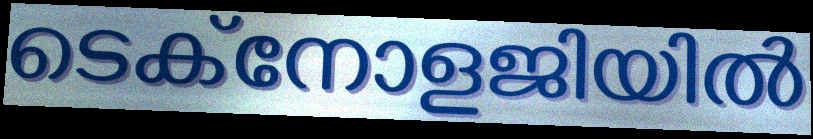
ടെക്‌നോളജിയിൽ